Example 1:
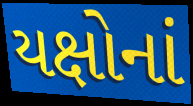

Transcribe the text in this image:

યક્ષોનાં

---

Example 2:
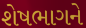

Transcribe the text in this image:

શેષભાગને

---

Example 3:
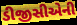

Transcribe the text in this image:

ડીજીસીએની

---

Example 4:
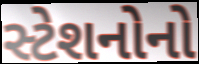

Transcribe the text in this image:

સ્ટેશનોનો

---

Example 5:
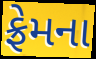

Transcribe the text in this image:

ફ્રેમના